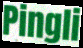
Pingli